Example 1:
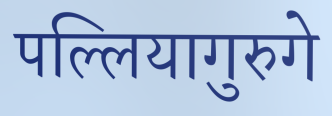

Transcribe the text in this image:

पल्लियागुरुगे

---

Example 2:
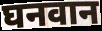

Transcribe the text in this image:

घनवान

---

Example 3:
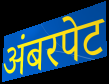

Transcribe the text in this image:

अंबरपेट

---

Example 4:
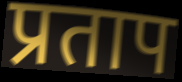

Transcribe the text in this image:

प्रताप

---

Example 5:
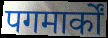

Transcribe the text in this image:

पगमार्कों